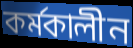
কর্মকালীন